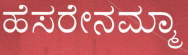
ಹೆಸರೇನಮ್ಮಾ